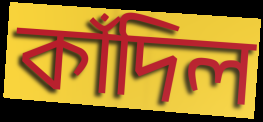
কাঁদিল